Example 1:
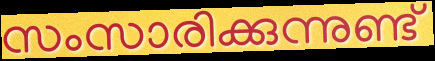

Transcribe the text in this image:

സംസാരിക്കുന്നുണ്ട്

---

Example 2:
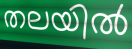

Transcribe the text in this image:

തലയിൽ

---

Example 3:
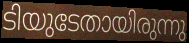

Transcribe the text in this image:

ടിയുടേതായിരുന്നു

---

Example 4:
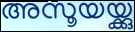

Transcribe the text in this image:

അസൂയയ്ക്കു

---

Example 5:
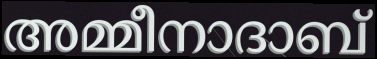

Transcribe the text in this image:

അമ്മീനാദാബ്